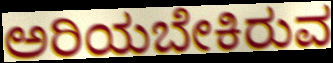
ಅರಿಯಬೇಕಿರುವ